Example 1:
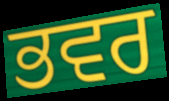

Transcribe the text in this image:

ਭਵਰ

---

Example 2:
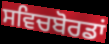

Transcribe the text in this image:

ਸਵਿਚਬੋਰਡਾਂ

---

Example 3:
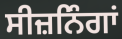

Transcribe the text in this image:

ਸੀਜ਼ਨਿੰਗਾਂ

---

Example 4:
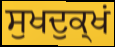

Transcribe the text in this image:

ਸੁਖਦੁਕ੍ਖਂ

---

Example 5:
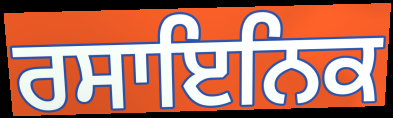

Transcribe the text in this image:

ਰਸਾਇਨਿਕ